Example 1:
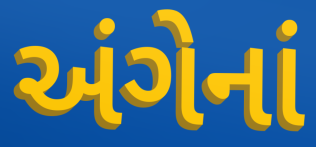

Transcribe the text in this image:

અંગેનાં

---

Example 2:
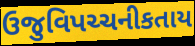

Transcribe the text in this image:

ઉજુવિપચ્ચનીકતાય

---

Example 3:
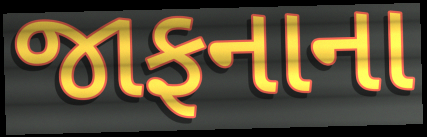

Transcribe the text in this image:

જાફનાના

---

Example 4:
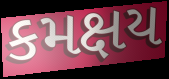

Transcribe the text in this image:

કમક્ષય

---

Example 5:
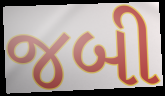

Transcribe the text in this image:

જબી